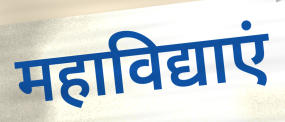
महाविद्याएं